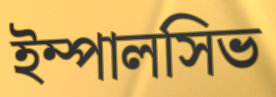
ইম্পালসিভ